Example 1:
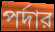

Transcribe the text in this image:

পর্দার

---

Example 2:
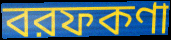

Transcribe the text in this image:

বরফকণা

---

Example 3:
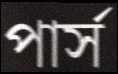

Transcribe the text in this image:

পার্স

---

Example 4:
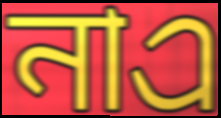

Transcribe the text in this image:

নাএ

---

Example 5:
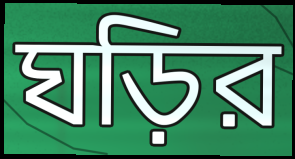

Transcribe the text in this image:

ঘড়ির